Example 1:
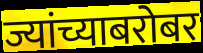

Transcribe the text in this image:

ज्यांच्याबरोबर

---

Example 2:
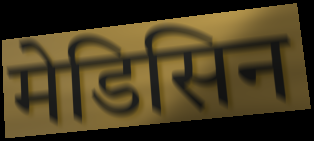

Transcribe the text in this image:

मेडिसिन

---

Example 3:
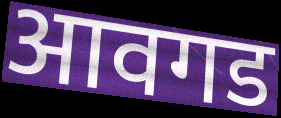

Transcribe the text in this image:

आवगड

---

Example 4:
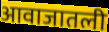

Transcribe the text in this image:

आवाजातली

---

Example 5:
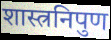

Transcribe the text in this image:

शास्त्रनिपुण